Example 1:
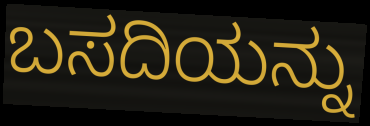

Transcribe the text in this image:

ಬಸದಿಯನ್ನು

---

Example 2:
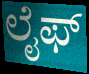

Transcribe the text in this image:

ಲೈಫ್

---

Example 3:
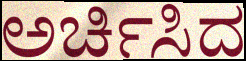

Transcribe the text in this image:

ಅರ್ಚಿಸಿದ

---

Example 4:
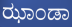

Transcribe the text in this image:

ಝಾಂಡಾ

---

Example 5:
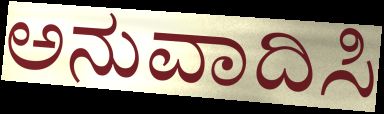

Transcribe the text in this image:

ಅನುವಾದಿಸಿ